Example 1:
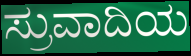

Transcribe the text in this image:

ಸ್ರುವಾದಿಯ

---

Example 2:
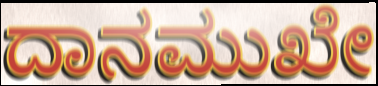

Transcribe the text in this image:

ದಾನಮುಖೇ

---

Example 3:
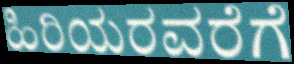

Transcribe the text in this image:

ಹಿರಿಯರವರೆಗೆ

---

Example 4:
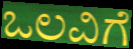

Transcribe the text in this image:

ಒಲವಿಗೆ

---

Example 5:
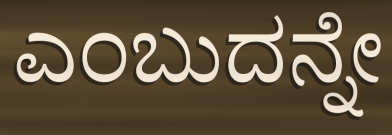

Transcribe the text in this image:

ಎಂಬುದನ್ನೇ